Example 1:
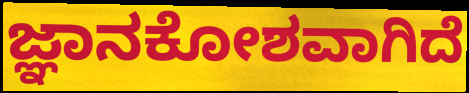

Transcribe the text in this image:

ಜ್ಞಾನಕೋಶವಾಗಿದೆ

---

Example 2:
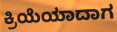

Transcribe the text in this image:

ಕ್ರಿಯೆಯಾದಾಗ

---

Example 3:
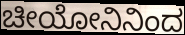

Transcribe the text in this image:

ಚೀಯೋನಿನಿಂದ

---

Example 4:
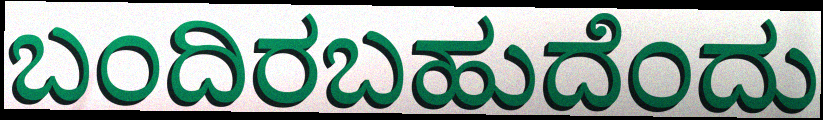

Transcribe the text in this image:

ಬಂದಿರಬಹುದೆಂದು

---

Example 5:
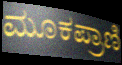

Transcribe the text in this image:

ಮೂಕಪ್ರಾಣಿ